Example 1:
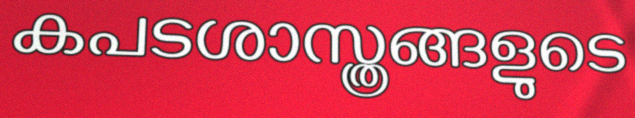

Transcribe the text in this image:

കപടശാസ്ത്രങ്ങളുടെ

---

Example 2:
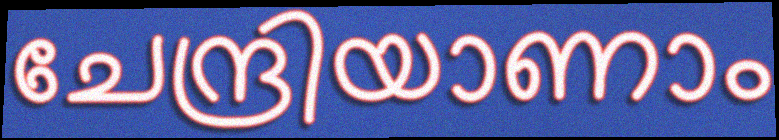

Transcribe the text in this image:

ചേന്ദ്രിയാണാം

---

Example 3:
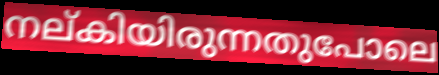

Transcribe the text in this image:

നല്കിയിരുന്നതുപോലെ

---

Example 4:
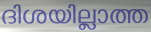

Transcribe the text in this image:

ദിശയില്ലാത്ത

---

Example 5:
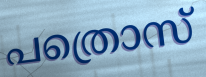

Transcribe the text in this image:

പത്രൊസ്